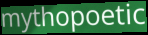
mythopoetic